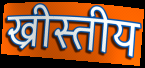
ख्रीस्तीय